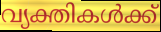
വ്യക്തികൾക്ക്